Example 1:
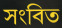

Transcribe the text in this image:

সংবিত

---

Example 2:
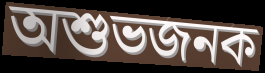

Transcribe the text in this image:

অশুভজনক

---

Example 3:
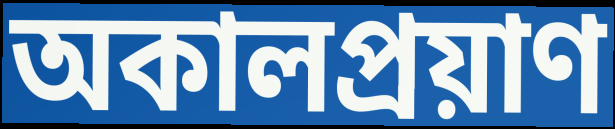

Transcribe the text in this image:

অকালপ্রয়াণ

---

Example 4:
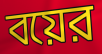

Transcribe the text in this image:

বয়ের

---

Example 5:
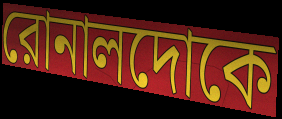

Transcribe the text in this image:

রোনালদোকে